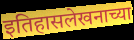
इतिहासलेखनाच्या